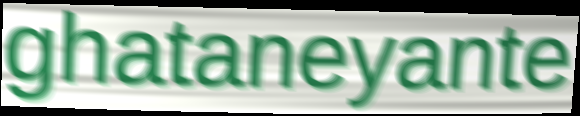
ghataneyante